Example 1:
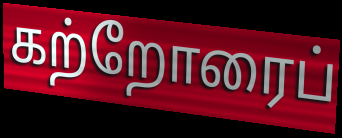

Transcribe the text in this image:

கற்றோரைப்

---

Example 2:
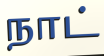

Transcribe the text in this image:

நாட்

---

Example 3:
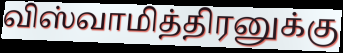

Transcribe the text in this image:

விஸ்வாமித்திரனுக்கு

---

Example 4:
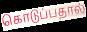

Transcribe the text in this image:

கொடுப்பதால்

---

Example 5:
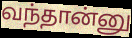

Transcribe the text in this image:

வந்தான்னு